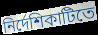
নির্দেশিকাটিতে